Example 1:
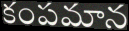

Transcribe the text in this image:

కంపమాన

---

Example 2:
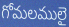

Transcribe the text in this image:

గోమలములై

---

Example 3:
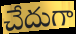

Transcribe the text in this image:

చేదుగా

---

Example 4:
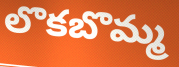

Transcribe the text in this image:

లొకబొమ్మ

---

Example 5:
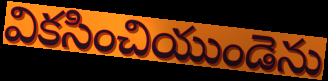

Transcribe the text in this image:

వికసించియుండెను